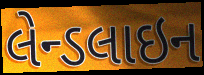
લેન્ડલાઇન